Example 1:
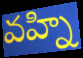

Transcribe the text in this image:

వహ్ని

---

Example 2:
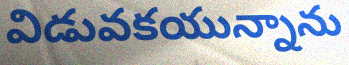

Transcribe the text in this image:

విడువకయున్నాను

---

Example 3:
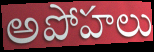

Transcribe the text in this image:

అపోహలు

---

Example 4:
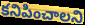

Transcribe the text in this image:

కనిపించాలని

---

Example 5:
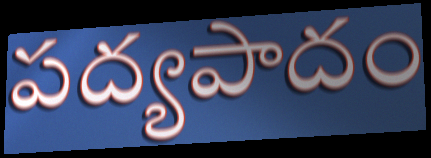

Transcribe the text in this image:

పద్యపాదం